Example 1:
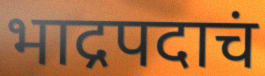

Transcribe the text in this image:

भाद्रपदाचं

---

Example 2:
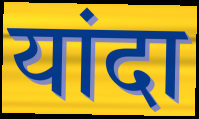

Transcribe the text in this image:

यांदा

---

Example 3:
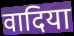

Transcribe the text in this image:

वादिया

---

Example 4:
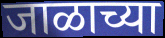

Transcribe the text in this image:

जाळाच्या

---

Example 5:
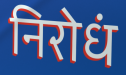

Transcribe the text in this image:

निरोधं